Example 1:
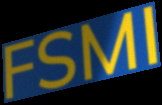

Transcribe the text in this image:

FSMI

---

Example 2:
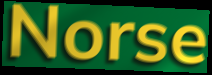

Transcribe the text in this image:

Norse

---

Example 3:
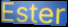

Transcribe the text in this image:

Ester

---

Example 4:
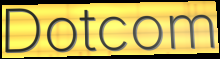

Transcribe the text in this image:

Dotcom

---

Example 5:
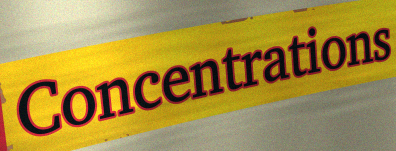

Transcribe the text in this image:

Concentrations